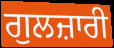
ਗੁਲਜ਼ਾਰੀ